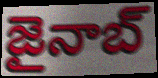
జైనాబ్